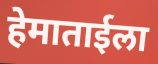
हेमाताईला